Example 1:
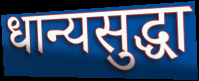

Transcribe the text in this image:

धान्यसुद्धा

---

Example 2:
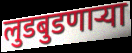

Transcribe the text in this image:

लुडबुडणाऱ्या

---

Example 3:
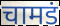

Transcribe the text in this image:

चामडं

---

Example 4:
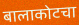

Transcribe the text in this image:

बालाकोटचा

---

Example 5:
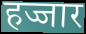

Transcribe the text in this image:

हज्जार